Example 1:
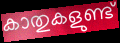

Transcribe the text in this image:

കാതുകളുണ്ട്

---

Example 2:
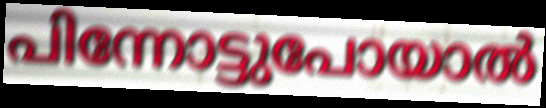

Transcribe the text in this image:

പിന്നോട്ടുപോയാൽ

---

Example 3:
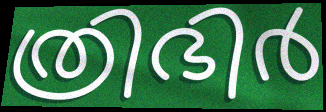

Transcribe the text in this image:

ത്രിഭിർ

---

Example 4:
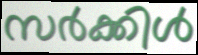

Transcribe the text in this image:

സർക്കിൾ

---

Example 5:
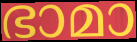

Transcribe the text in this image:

ഭാമാ